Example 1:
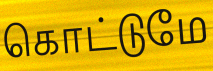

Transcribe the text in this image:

கொட்டுமே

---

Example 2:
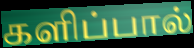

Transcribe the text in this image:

களிப்பால்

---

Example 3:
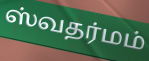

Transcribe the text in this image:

ஸ்வதர்மம்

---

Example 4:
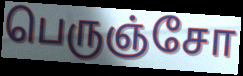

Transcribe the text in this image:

பெருஞ்சோ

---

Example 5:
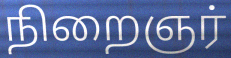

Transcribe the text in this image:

நிறைஞர்